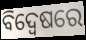
ବିଦ୍ଵେଷରେ